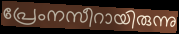
പ്രേംനസീറായിരുന്നു